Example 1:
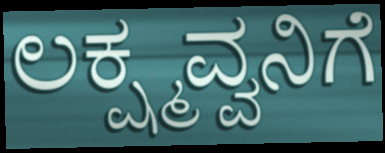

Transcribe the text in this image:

ಲಕ್ಷ್ಮವ್ವನಿಗೆ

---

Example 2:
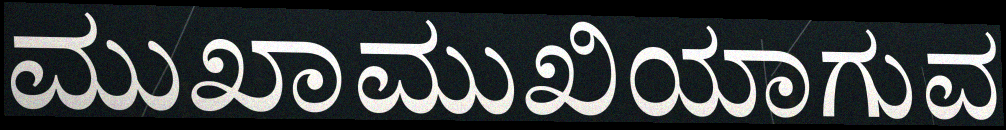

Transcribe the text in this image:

ಮುಖಾಮುಖಿಯಾಗುವ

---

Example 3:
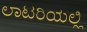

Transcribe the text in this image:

ಲಾಟರಿಯಲ್ಲಿ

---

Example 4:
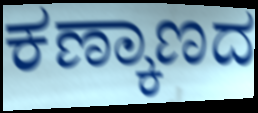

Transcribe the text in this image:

ಕಣ್ಕಾಣದ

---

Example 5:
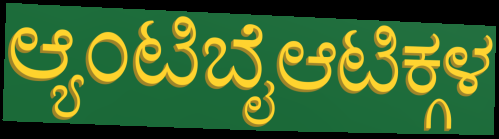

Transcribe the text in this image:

ಆ್ಯಂಟಿಬೈಆಟಿಕ್ಗಳ